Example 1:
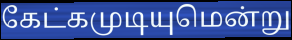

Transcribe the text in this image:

கேட்கமுடியுமென்று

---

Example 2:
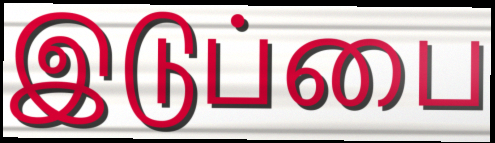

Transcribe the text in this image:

இடுப்பை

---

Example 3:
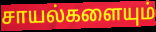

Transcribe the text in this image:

சாயல்களையும்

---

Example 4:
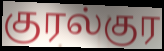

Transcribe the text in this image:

குரல்குர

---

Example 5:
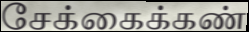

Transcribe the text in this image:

சேக்கைக்கண்